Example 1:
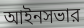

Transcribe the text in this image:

আইনসভার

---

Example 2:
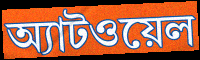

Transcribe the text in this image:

অ্যাটওয়েল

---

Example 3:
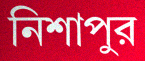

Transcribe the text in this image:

নিশাপুর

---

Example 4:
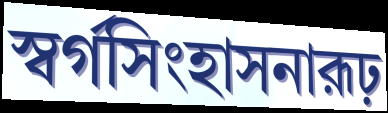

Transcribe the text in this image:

স্বর্গসিংহাসনারূঢ়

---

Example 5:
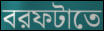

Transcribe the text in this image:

বরফটাতে